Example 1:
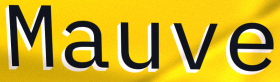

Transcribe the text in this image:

Mauve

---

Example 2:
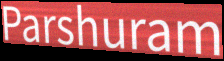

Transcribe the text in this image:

Parshuram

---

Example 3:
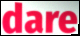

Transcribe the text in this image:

dare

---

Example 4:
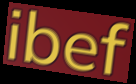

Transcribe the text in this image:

ibef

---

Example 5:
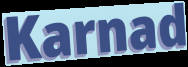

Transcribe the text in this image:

Karnad